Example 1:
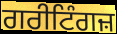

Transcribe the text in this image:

ਗਰੀਟਿੰਗਜ਼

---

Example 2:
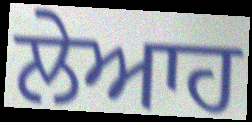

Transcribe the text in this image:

ਲੇਆਹ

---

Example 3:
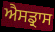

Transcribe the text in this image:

ਐਸਡ੍ਰਾਸ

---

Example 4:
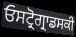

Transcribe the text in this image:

ਓਸਟ੍ਰੋਗ੍ਰਾਡਸਕੀ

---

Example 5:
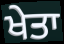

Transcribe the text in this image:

ਖੇਤਾ